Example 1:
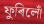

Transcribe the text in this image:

ফুৰিলোঁ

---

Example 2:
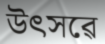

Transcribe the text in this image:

উৎসৱে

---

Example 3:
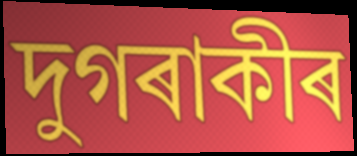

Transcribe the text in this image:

দুগৰাকীৰ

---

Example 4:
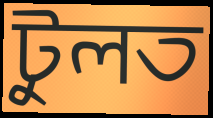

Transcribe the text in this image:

টুলত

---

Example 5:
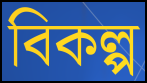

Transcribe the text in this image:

বিকল্প